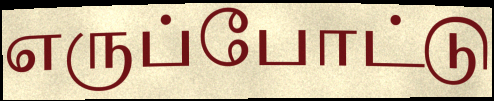
எருப்போட்டு